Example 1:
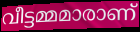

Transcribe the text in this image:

വീട്ടമ്മമാരാണ്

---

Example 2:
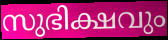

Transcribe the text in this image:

സുഭിക്ഷവും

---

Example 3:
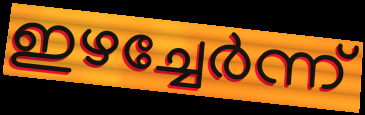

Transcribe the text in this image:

ഇഴച്ചേർന്ന്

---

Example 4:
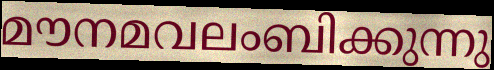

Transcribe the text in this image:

മൗനമവലംബിക്കുന്നു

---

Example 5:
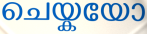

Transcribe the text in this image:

ചെയ്കയോ